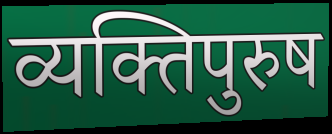
व्यक्तिपुरुष